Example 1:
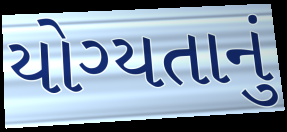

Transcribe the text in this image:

યોગ્યતાનું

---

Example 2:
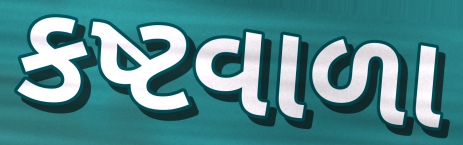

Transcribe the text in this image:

કષ્ટવાળા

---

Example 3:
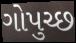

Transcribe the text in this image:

ગોપુચ્છ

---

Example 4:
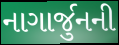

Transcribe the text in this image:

નાગાર્જુનની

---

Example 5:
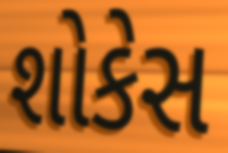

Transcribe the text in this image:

શોકેસ